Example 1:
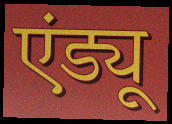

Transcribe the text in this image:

एंड्यू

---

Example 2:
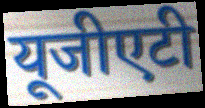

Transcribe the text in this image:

यूजीएटी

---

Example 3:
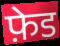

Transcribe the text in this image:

फ़ेड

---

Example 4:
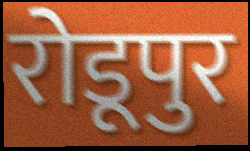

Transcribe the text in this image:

रोडूपुर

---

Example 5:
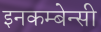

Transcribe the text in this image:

इनकम्बेन्सी